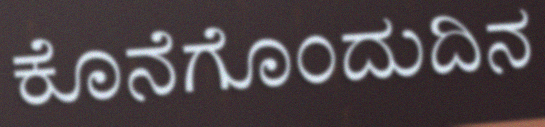
ಕೊನೆಗೊಂದುದಿನ